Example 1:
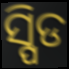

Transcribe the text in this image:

ସ୍ପିଡ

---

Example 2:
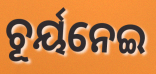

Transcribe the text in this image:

ଚୂର୍ୟନେଇ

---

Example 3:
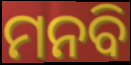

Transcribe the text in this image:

ମନବି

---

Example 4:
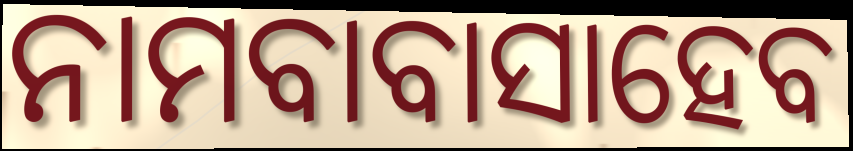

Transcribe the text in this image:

ନାମବାବାସାହେବ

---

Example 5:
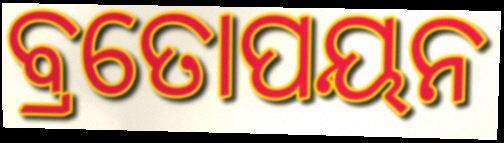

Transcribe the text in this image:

ବ୍ରତୋପୟନ